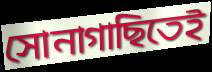
সোনাগাছিতেই